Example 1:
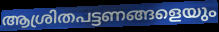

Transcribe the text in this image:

ആശ്രിതപട്ടണങ്ങളെയും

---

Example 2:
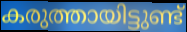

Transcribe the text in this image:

കരുത്തായിട്ടുണ്ട്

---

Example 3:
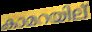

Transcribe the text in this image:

കാമറയില്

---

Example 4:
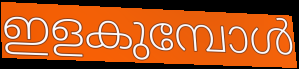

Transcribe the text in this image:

ഇളകുമ്പോൾ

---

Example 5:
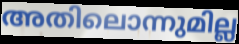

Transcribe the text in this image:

അതിലൊന്നുമില്ല